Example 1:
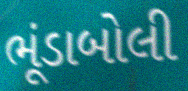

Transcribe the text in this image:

ભૂંડાબોલી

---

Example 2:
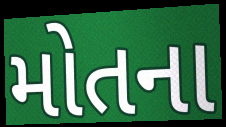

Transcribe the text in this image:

મોતના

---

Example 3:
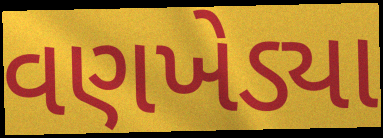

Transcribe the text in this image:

વણખેડ્યા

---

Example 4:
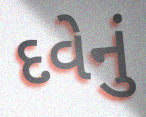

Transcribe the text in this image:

દવેનું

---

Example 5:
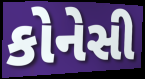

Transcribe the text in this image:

કોનેસી